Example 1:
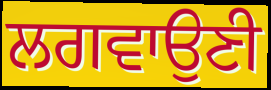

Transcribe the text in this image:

ਲਗਵਾਉਣੀ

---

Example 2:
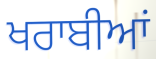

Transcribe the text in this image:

ਖਰਾਬੀਆਂ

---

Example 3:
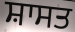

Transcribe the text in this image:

ਸ਼ਾਸਤ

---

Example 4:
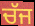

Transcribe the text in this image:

ਚੱਜ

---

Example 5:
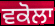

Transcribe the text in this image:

ਵਕੋਲਾ